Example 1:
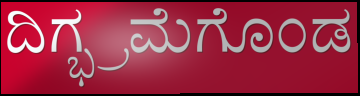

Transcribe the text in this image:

ದಿಗ್ಭ್ರಮೆಗೊಂಡ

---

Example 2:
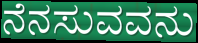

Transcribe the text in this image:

ನೆನಸುವವನು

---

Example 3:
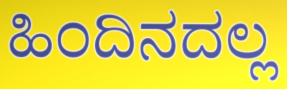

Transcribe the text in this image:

ಹಿಂದಿನದಲ್ಲ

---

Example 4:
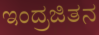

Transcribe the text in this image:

ಇಂದ್ರಜಿತನ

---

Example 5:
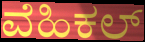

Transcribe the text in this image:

ವೆಹಿಕಲ್